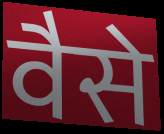
वैसे